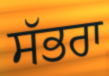
ਸੱਭਰਾ